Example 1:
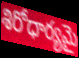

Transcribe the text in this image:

శిరోధార్యమై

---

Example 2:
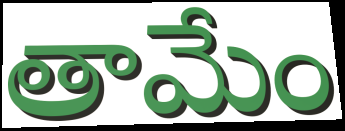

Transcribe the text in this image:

తామేం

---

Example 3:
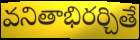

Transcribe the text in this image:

వనితాభిరర్చితే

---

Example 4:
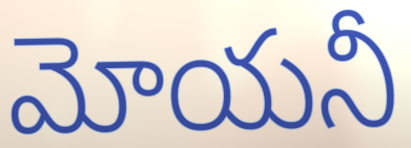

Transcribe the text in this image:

మోయనీ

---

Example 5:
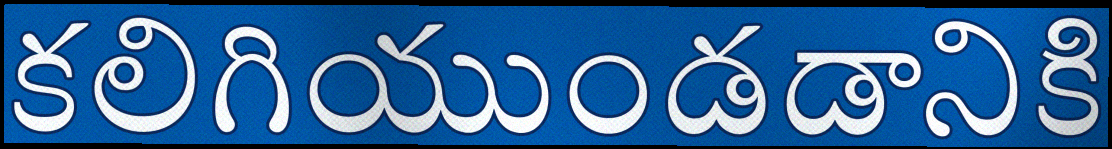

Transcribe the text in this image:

కలిగియుండడానికి